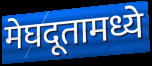
मेघदूतामध्ये